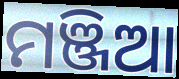
ମଞ୍ଜିଆ